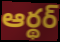
ఆర్థర్